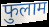
फुलाम